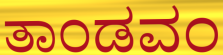
ತಾಂಡವಂ